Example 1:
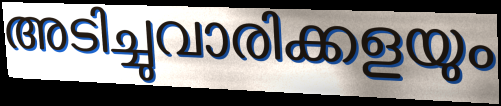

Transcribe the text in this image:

അടിച്ചുവാരിക്കളയും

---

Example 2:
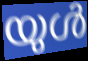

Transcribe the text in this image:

യുൾ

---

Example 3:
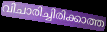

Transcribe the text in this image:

വിചാരിച്ചിരിക്കാത്ത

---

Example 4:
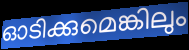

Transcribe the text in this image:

ഓടിക്കുമെങ്കിലും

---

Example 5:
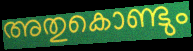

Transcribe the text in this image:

അതുകൊണ്ടും